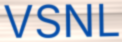
VSNL